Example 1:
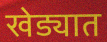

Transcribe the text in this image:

खेड्यात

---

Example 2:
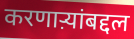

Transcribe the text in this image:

करणाऱ्‍यांबद्दल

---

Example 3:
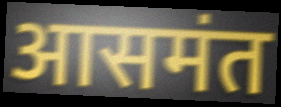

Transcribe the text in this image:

आसमंत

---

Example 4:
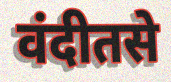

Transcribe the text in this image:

वंदीतसे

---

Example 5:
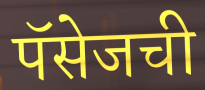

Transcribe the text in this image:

पॅसेजची